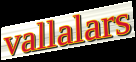
vallalars